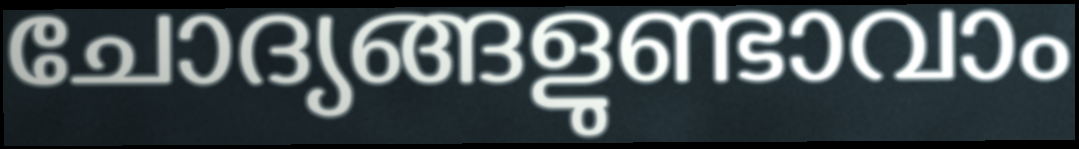
ചോദ്യങ്ങളുണ്ടാവാം